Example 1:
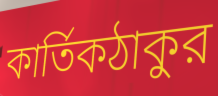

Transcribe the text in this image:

কার্তিকঠাকুর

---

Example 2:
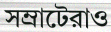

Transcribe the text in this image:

সম্রাটেরাও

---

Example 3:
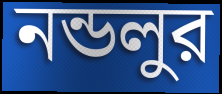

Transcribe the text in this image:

নন্ডলুর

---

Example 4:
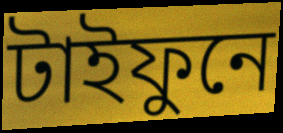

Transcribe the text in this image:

টাইফুনে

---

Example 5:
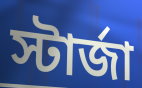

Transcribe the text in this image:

স্টার্জা